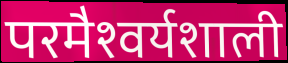
परमैश्वर्यशाली